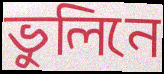
ভুলিনে